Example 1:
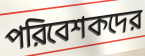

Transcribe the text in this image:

পরিবেশকদের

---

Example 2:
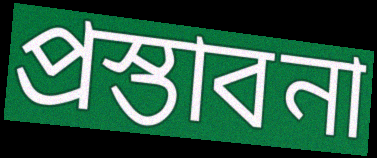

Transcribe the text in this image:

প্রস্তাবনা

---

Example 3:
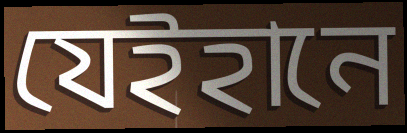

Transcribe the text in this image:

যেইহানে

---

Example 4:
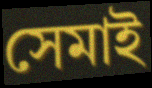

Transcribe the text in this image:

সেমাই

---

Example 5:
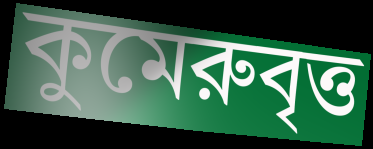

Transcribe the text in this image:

কুমেরুবৃত্ত